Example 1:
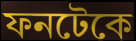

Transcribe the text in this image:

ফনটেকে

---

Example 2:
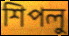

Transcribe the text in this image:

শিপলু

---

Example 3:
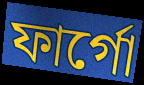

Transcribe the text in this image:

ফার্গো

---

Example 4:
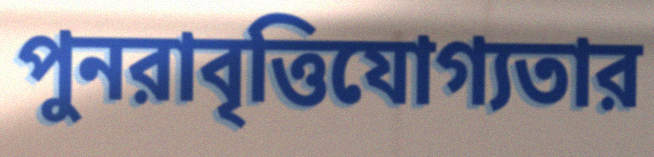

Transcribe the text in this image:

পুনরাবৃত্তিযোগ্যতার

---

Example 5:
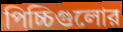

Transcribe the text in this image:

পিচ্চিগুলোর